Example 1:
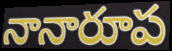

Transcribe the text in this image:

నానారూప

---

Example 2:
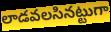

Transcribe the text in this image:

లాడవలసినట్టుగా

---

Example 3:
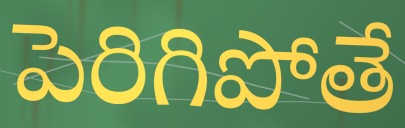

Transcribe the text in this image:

పెరిగిపోతే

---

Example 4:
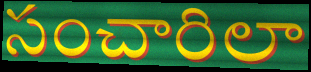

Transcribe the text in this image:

సంచారిలా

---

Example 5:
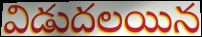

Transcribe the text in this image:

విడుదలయిన